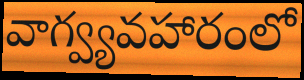
వాగ్వ్యవహారంలో